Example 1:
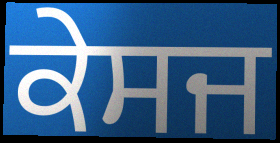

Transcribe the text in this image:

ਕੇਸਜ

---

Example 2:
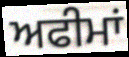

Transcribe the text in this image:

ਅਫੀਮਾਂ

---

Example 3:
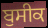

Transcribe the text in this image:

ਬੁਸੀਕ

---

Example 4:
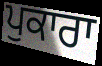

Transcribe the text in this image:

ਪੁਕਾਰਾ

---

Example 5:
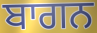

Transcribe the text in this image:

ਬਾਗਨ